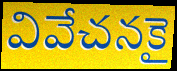
వివేచనకై